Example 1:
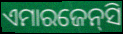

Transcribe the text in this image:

ଏମାରଜେନ୍‌ସି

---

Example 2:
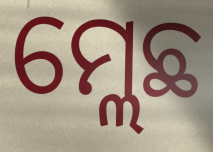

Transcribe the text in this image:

ମ୍ଲେଛ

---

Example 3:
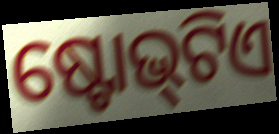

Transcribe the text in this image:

ଷ୍ଟୋଭ୍‌ଟିଏ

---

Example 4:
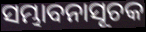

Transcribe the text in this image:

ସମ୍ଭାବନାସୂଚକ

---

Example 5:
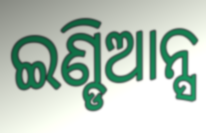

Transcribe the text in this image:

ଇଣ୍ଡିଆନ୍ସ